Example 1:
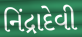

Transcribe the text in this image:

નિંદ્રાદેવી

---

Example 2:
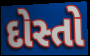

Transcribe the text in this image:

દોસ્તો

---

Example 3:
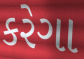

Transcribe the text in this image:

કરેગા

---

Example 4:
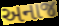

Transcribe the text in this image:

અનાજ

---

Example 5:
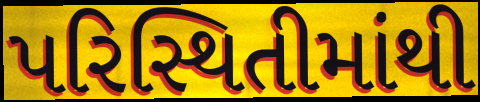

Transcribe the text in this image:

પરિસ્થિતીમાંથી